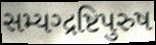
સમ્યગ્દ્રષ્ટિપુરુષ